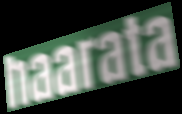
haarata